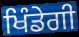
ਖਿੰਡੇਗੀ